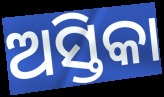
ଅସ୍ତିକା